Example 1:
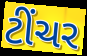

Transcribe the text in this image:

ટીંચર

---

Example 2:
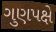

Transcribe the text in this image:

ગુણપક્ષે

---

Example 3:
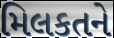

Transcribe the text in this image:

મિલકતને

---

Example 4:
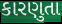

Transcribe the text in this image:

કારણુતા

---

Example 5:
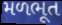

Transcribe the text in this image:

મળભૂત